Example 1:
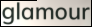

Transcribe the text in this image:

glamour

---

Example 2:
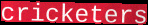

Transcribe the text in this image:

cricketers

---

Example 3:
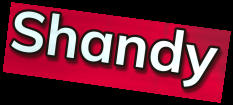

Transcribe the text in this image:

Shandy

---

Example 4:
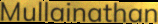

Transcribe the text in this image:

Mullainathan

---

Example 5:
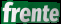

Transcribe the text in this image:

frente